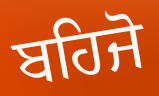
ਬਹਿਜੋ